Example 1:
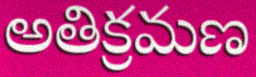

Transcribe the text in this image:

అతిక్రమణ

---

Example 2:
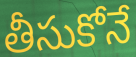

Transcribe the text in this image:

తీసుకోనే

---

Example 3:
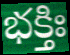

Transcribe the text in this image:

భక్తిః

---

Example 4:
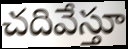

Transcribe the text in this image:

చదివేస్తూ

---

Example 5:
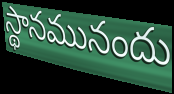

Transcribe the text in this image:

స్థానమునందు